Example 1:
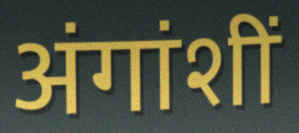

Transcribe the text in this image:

अंगांशीं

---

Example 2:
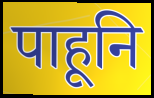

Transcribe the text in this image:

पाहूनि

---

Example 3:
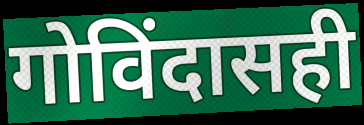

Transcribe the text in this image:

गोविंदासही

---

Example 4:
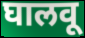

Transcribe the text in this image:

घालवू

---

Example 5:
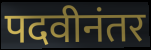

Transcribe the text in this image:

पदवीनंतर